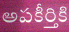
అపకీర్తికి